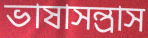
ভাষাসন্ত্রাস